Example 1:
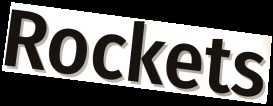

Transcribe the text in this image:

Rockets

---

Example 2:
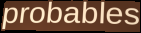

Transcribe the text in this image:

probables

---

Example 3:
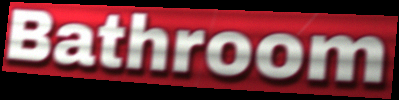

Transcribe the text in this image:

Bathroom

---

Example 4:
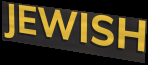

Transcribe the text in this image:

JEWISH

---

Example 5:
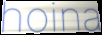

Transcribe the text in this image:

hoina